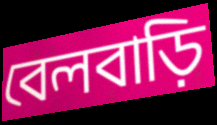
বেলবাড়ি